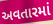
અવતારમાં